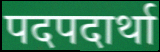
पदपदार्था